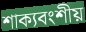
শাক্যবংশীয়